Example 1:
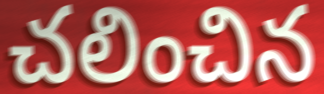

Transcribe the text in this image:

చలించిన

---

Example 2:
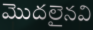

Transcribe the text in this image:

మొదలైనవి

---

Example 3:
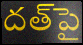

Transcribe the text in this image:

దత్‌పై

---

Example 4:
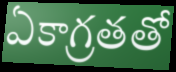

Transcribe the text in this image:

ఏకాగ్రతతో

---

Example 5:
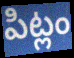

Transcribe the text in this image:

పిట్లం